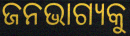
ଜନଭାଗ୍ୟକୁ